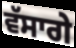
ਵੱਸਾਗੇ